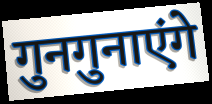
गुनगुनाएंगे